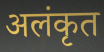
अलंकृत